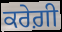
ਕਰੇਗ਼ੀ